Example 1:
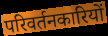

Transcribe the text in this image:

परिवर्तनकारियों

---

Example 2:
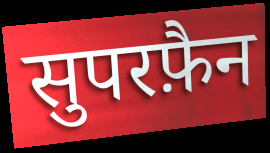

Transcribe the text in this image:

सुपरफ़ैन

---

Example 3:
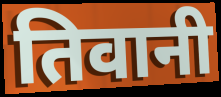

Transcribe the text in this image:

तिवानी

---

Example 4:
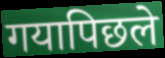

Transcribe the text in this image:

गयापिछले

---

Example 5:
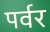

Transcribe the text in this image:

पर्वर